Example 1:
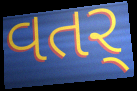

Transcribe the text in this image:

વતર્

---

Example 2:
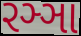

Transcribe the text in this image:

રઞ્ઞા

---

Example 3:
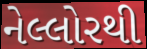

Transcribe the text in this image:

નેલ્લોરથી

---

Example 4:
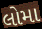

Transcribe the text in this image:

લોમા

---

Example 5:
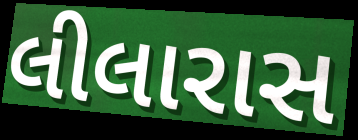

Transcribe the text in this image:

લીલારાસ